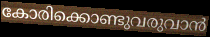
കോരിക്കൊണ്ടുവരുവാൻ